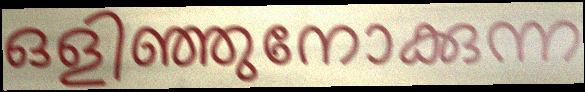
ഒളിഞ്ഞുനോക്കുന്ന